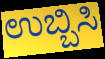
ಉಬ್ಬಿಸಿ